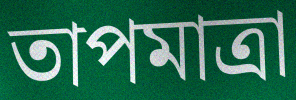
তাপমাত্ৰা